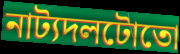
নাট্যদলটোতো